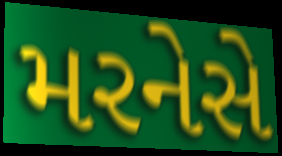
મરનેસે